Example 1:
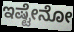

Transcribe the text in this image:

ಇಷ್ಟೇನೋ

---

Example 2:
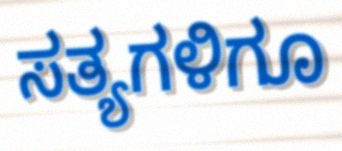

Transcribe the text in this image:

ಸತ್ಯಗಳಿಗೂ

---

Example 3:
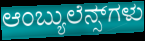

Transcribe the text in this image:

ಆಂಬ್ಯುಲೆನ್ಸ್‌ಗಳು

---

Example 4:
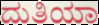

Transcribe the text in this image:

ದುತಿಯಾ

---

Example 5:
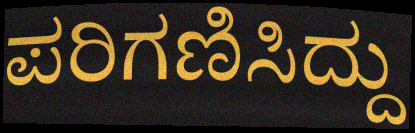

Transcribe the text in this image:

ಪರಿಗಣಿಸಿದ್ದು